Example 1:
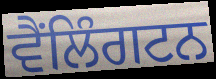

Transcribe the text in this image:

ਵੈਂਲਿੰਗਟਨ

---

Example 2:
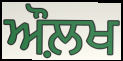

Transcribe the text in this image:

ਔਲ਼ਖ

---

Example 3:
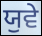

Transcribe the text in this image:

ਯੁਵੇ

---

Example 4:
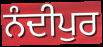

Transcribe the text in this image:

ਨੰਦੀਪੁਰ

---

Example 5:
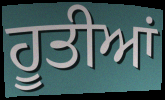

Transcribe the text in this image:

ਹੂਤੀਆਂ